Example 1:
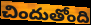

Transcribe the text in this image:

చిందుతోంది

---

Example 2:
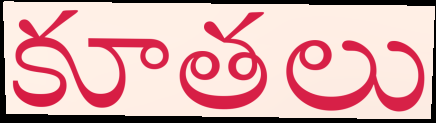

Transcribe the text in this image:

కూతలు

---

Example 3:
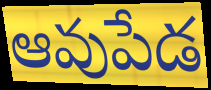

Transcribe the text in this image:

ఆవుపేడ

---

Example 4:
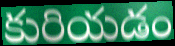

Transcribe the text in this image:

కురియడం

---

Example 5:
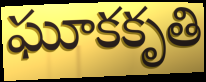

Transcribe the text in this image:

ఘూకకృతి